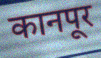
कानपूर